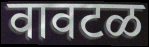
वावटळ